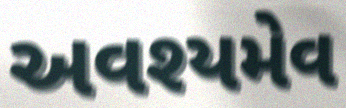
અવશ્યમેવ